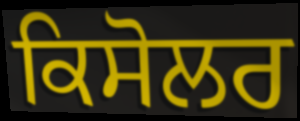
ਕਿਸੋਲਰ